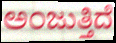
ಅಂಜುತ್ತಿದೆ